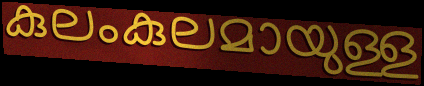
കുലംകുലമായുള്ള